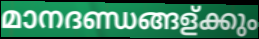
മാനദണ്ഡങ്ങള്ക്കും